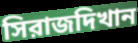
সিরাজদিখান